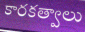
కారకత్వాలు